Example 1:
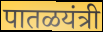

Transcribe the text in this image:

पातळयंत्री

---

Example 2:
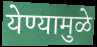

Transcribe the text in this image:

येण्यामुळे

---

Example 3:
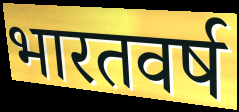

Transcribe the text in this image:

भारतवर्ष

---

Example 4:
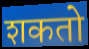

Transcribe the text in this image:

शकतो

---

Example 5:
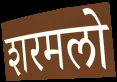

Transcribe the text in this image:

शरमलो